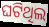
ଘଟିଥିଲ